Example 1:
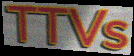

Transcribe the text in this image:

TTVs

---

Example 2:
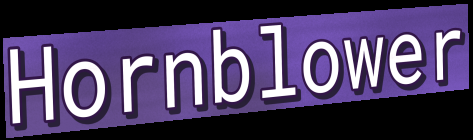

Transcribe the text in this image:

Hornblower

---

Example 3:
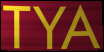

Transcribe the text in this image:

TYA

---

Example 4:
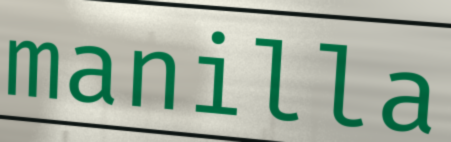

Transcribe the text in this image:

manilla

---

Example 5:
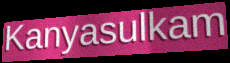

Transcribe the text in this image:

Kanyasulkam